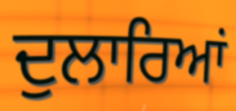
ਦੁਲਾਰਿਆਂ